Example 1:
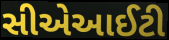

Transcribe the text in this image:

સીએઆઈટી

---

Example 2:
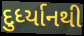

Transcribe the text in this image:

દુર્ધ્યાનથી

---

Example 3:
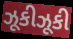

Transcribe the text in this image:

ઝૂકીઝૂકી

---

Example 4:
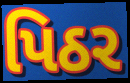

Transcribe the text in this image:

પિઠર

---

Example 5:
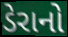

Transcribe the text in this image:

ડેરાનો